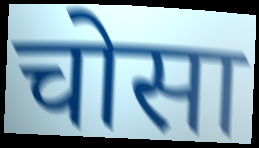
चोसा